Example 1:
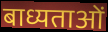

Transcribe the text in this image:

बाध्यताओं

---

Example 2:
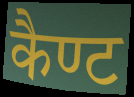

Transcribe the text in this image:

कैण्ट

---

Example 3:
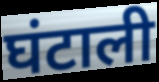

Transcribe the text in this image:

घंटाली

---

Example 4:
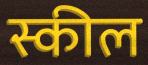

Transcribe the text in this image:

स्‍कील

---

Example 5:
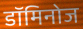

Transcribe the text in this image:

डॉमिनोज